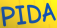
PIDA